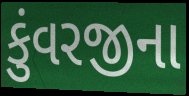
કુંવરજીના